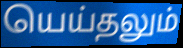
யெய்தலும்